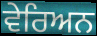
ਵੇਰਿਅਨ